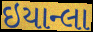
ઇયાન્લા